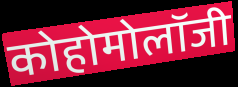
कोहोमोलॉजी